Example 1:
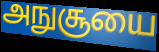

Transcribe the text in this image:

அநுசூயை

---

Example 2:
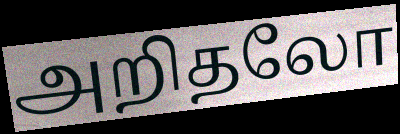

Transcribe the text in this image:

அறிதலோ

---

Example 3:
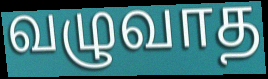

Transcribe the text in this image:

வழுவாத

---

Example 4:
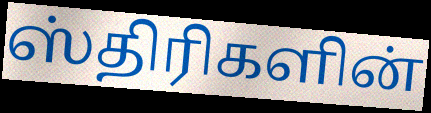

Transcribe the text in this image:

ஸ்திரிகளின்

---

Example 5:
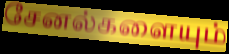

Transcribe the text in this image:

சேனல்களையும்